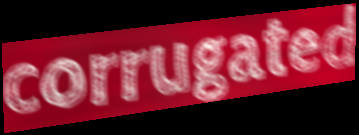
corrugated